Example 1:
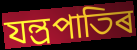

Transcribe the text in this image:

যন্ত্ৰপাতিৰ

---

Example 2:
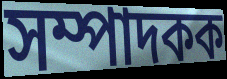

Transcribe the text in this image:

সম্পাদকক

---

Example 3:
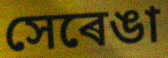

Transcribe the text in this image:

সেৰেঙা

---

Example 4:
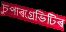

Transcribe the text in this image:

চুপাৰগ্ৰেভিটিৰ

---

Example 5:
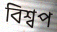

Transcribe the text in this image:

বিশ্বপ